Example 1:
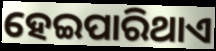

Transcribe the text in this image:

ହେଇପାରିଥାଏ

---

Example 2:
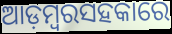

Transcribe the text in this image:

ଆଡ଼ମ୍ବରସହକାରେ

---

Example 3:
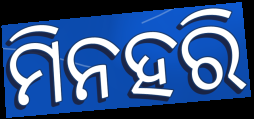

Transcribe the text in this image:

ମିନହରି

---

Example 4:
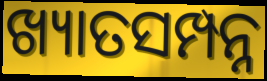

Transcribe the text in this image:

ଖ୍ୟାତସମ୍ପନ୍ନ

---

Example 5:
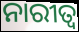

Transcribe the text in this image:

ନାରୀତ୍ୱ